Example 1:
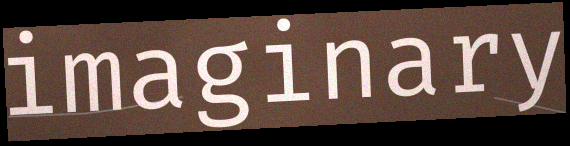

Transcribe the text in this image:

imaginary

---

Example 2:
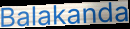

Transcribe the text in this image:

Balakanda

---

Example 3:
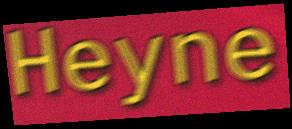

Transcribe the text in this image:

Heyne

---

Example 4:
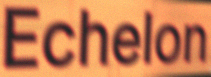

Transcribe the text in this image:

Echelon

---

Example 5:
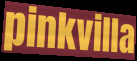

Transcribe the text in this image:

pinkvilla